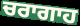
ਚਰਾਗਾਹ